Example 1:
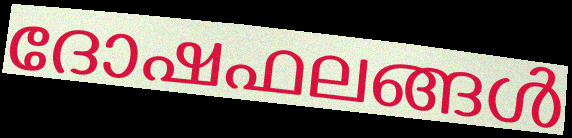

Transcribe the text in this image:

ദോഷഫലങ്ങൾ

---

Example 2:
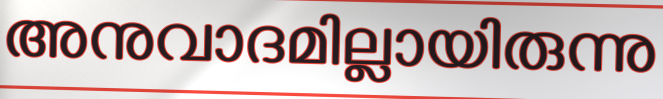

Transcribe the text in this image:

അനുവാദമില്ലായിരുന്നു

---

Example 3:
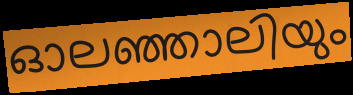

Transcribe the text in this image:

ഓലഞ്ഞാലിയും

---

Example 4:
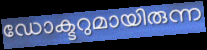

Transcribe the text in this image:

ഡോക്ടറുമായിരുന്ന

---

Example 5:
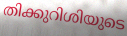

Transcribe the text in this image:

തിക്കുറിശിയുടെ